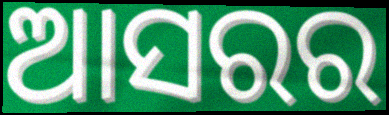
ଆସରର